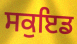
ਸਕੁਇਡ